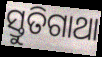
ସ୍ତୁତିଗାଥା